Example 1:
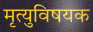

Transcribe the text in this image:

मृत्युविषयक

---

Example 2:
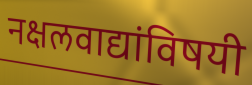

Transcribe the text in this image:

नक्षलवाद्यांविषयी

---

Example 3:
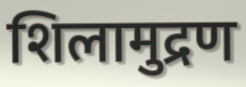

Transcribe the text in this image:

शिलामुद्रण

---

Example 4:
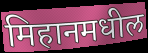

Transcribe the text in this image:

मिहानमधील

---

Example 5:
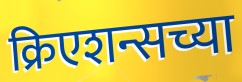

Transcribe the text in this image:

क्रिएशन्सच्या